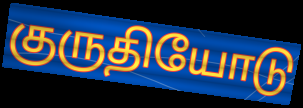
குருதியோடு